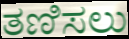
ತಣಿಸಲು